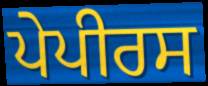
ਪੇਪੀਰਸ